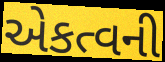
એકત્વની